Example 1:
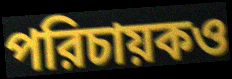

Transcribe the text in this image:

পরিচায়কও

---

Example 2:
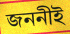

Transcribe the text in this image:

জননীই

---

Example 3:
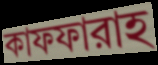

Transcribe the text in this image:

কাফফারাহ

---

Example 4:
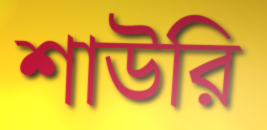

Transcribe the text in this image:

শাউরি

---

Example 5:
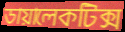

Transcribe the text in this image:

ডায়ালেকটিক্স